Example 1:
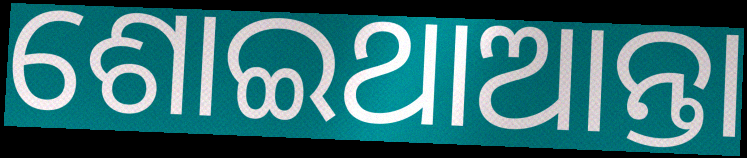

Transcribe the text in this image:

ଶୋଇଥାଆନ୍ତା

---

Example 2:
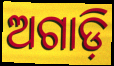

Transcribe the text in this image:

ଅଗାଡ଼ି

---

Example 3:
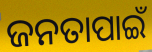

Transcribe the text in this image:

ଜନତାପାଇଁ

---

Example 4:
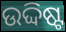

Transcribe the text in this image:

ଉଦ୍ଦିଷ୍ଟ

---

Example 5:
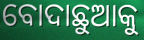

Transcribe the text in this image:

ବୋଦାଛୁଆକୁ